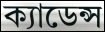
ক্যাডেন্স